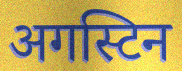
अगस्टिन